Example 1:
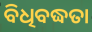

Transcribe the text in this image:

ବିଧିବଦ୍ଧତା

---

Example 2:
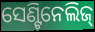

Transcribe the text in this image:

ସେଣ୍ଟିନେଲିଜ୍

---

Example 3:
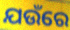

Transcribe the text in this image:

ଯଉଁରେ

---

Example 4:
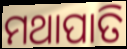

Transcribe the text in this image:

ମଥାପାତି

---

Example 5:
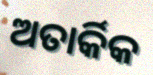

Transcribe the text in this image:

ଅତାର୍କିକ